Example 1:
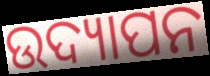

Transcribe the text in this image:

ଉଦ୍ୟାପନ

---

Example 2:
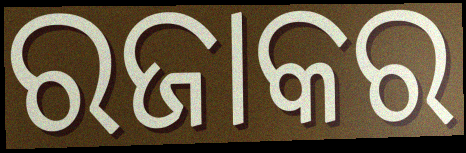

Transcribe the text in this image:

ରଜାକର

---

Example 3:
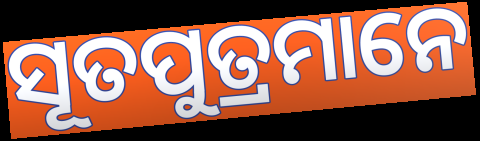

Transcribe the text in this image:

ସୂତପୁତ୍ରମାନେ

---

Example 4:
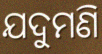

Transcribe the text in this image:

ଯଦୁମଣି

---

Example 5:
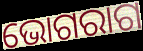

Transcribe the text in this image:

ଭୋଗରାଗ